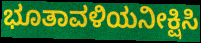
ಭೂತಾವಳಿಯನೀಕ್ಷಿಸಿ